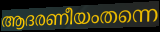
ആദരണീയംതന്നെ